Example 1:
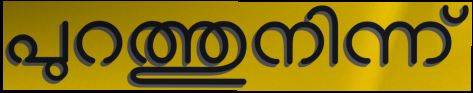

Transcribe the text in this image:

പുറത്തുനിന്ന്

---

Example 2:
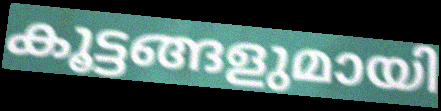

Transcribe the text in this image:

കൂട്ടങ്ങളുമായി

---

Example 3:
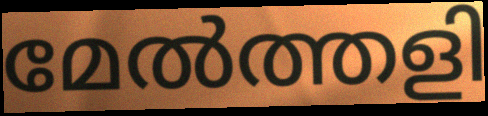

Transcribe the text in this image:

മേൽത്തളി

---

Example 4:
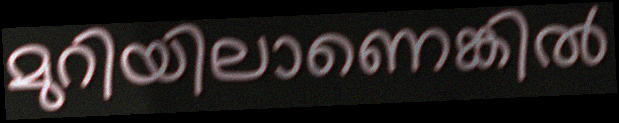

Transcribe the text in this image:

മുറിയിലാണെങ്കിൽ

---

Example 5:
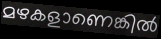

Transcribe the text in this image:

മഴകളാണെങ്കിൽ